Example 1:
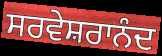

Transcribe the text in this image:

ਸਰਵੇਸ਼ਰਾਨੰਦ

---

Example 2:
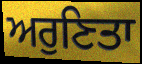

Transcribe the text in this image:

ਅਰੁਣਿਤਾ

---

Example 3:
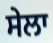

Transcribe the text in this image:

ਸੇਲਾ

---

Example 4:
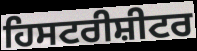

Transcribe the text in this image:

ਹਿਸਟਰੀਸ਼ੀਟਰ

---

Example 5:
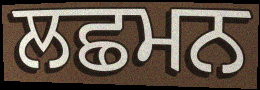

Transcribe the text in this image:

ਲਛਮਨ